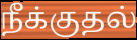
நீக்குதல்